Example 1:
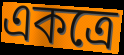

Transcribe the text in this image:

একত্রে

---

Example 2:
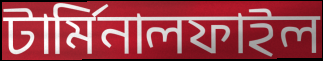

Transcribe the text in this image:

টার্মিনালফাইল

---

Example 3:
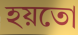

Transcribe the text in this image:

হয়তো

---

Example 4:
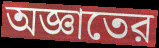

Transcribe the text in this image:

অজ্ঞাতের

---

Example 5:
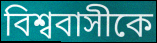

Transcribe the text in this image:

বিশ্ববাসীকে